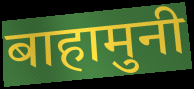
बाहामुनी